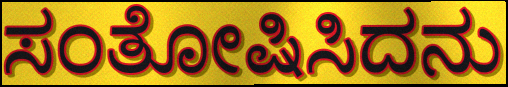
ಸಂತೋಷಿಸಿದನು